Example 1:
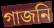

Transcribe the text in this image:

গাজনি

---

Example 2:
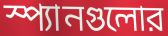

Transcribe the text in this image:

স্প্যানগুলোর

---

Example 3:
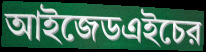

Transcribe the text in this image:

আইজেডএইচের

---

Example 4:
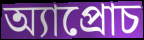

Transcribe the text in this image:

অ্যাপ্রোচ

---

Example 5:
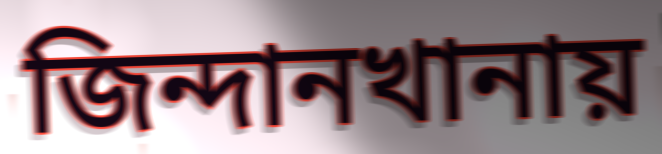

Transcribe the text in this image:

জিন্দানখানায়